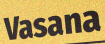
Vasana